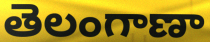
తెలంగాణా